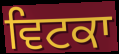
ਵਿਟਕਾ